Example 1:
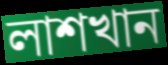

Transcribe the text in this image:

লাশখান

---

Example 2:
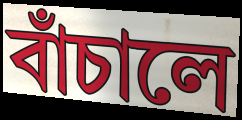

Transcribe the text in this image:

বাঁচালে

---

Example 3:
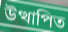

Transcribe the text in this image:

উত্থাপিত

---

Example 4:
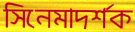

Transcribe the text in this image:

সিনেমাদর্শক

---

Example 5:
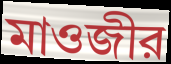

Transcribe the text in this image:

মাওজীর